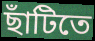
ছাঁটিতে